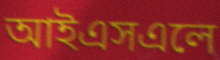
আইএসএলে